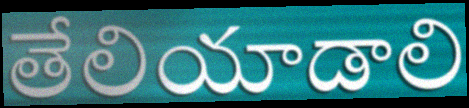
తేలియాడాలి